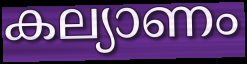
കല്യാണം